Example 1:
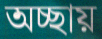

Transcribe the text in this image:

অচ্ছায়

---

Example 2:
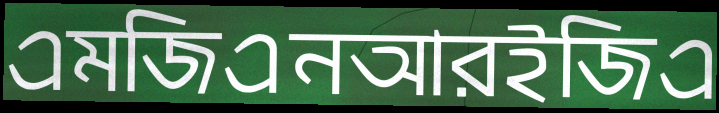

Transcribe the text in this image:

এমজিএনআরইজিএ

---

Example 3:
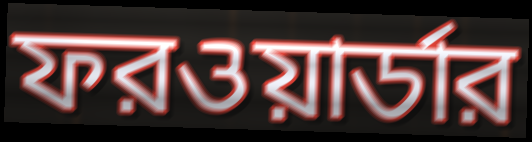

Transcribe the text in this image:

ফরওয়ার্ডার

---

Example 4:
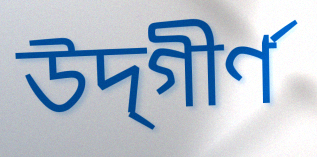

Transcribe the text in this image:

উদ্‌গীর্ণ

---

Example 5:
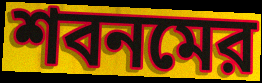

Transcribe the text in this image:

শবনমের